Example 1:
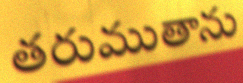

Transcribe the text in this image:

తరుముతాను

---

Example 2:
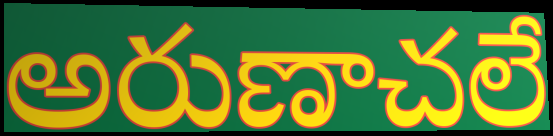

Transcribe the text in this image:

అరుణాచలే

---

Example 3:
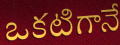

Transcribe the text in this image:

ఒకటిగానే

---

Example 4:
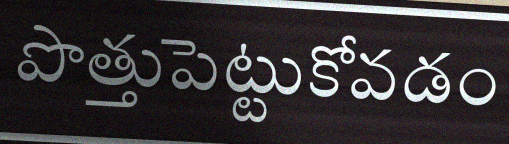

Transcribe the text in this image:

పొత్తుపెట్టుకోవడం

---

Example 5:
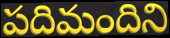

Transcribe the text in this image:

పదిమందిని